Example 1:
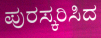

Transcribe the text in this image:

ಪುರಸ್ಕರಿಸಿದ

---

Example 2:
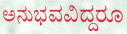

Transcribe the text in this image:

ಅನುಭವವಿದ್ದರೂ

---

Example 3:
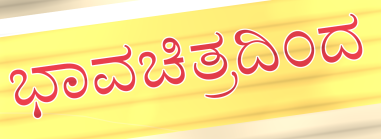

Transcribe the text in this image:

ಭಾವಚಿತ್ರದಿಂದ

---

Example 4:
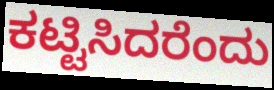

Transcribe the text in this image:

ಕಟ್ಟಿಸಿದರೆಂದು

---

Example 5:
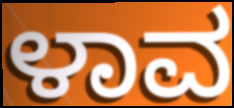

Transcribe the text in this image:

ಳಾವ